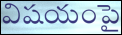
విషయంపై